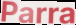
Parra